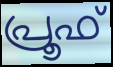
പ്രൂഫ്